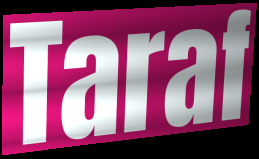
Taraf